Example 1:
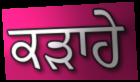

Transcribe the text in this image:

ਕੜਾਹੇ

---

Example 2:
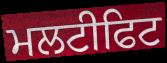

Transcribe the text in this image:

ਮਲਟੀਫਿਟ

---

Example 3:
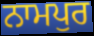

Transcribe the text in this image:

ਨਾਮਪੁਰ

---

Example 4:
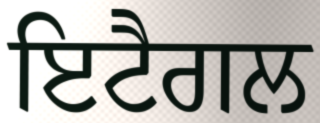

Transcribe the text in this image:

ਇਟੈਗਲ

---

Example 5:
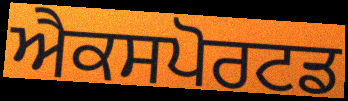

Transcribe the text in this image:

ਐਕਸਪੋਰਟਡ